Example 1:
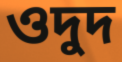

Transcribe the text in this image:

ওদুদ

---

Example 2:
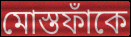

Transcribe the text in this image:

মোস্তফাঁকে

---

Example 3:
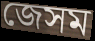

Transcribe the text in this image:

জেসম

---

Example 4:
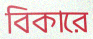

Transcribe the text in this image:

বিকারে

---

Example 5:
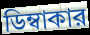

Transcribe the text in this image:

ডিম্বাকার